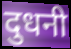
दुधनी